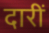
दारीं